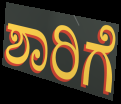
ಶಾರಿಗೆ